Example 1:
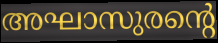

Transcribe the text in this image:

അഘാസുരന്റെ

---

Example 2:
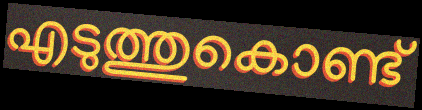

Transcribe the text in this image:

എടുത്തുകൊണ്ട്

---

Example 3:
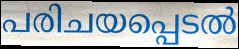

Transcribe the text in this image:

പരിചയപ്പെടൽ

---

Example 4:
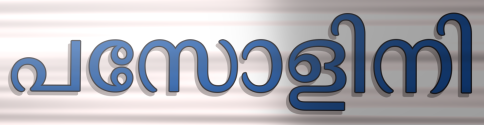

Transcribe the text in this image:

പസോളിനി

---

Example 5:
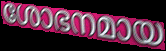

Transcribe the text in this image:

ശോഭനമായ